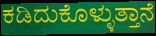
ಕಡಿದುಕೊಳ್ಳುತ್ತಾನೆ